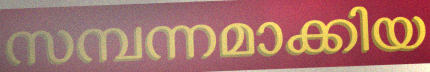
സമ്പന്നമാക്കിയ